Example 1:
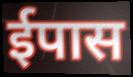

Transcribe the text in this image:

ईपास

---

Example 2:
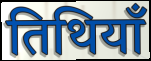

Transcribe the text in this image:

तिथियाँ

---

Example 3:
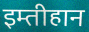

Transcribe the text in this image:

इम्तीहान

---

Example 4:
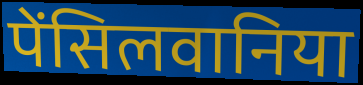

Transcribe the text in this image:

पेंसिलवानिया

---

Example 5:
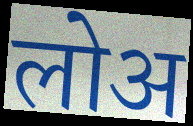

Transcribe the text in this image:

लोअ